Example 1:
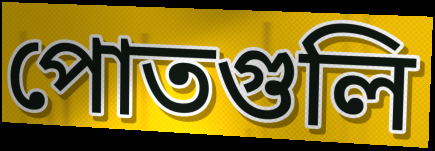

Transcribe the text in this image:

পোতগুলি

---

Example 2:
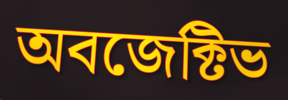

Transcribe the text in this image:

অবজেক্টিভ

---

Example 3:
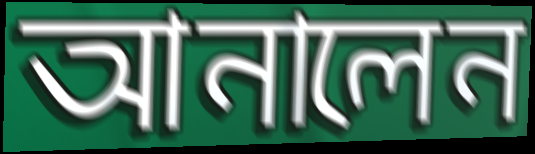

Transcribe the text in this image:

আনালেন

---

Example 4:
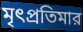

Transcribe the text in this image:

মৃৎপ্রতিমার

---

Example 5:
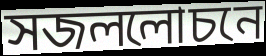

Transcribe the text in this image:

সজললোচনে